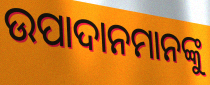
ଉପାଦାନମାନଙ୍କୁ